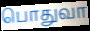
பொதுவா